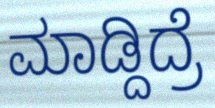
ಮಾಡ್ದಿದ್ರೆ